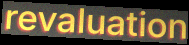
revaluation